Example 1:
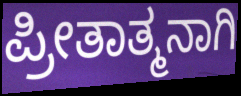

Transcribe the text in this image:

ಪ್ರೀತಾತ್ಮನಾಗಿ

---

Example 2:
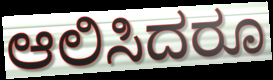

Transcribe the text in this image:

ಆಲಿಸಿದರೂ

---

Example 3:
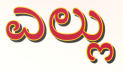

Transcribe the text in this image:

ಎಲ್ಲು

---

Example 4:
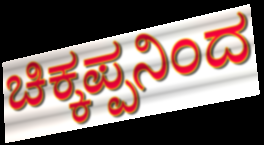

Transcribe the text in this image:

ಚಿಕ್ಕಪ್ಪನಿಂದ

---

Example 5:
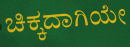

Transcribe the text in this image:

ಚಿಕ್ಕದಾಗಿಯೇ